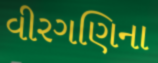
વીરગણિના